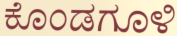
ಕೊಂಡಗೂಳಿ